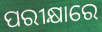
ପରୀକ୍ଷାରେ